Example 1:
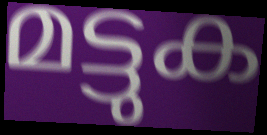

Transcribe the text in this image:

മട്ടുക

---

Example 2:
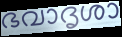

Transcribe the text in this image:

ഭവാദൃശാ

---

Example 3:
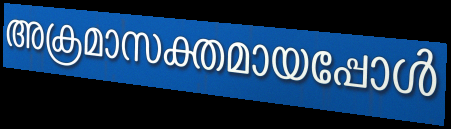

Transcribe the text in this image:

അക്രമാസക്തമായപ്പോൾ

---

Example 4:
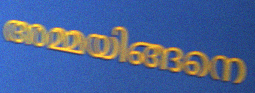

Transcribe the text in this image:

അമ്മയിങ്ങനെ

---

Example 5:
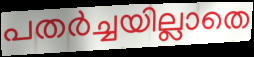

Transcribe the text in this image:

പതർച്ചയില്ലാതെ